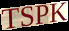
TSPK